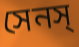
সেনস্